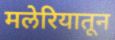
मलेरियातून